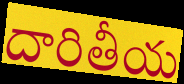
దారితీయ